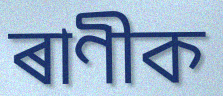
ৰাণীক